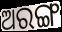
ଅରଙ୍ଗ